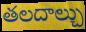
తలదాల్చు